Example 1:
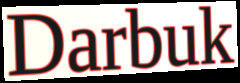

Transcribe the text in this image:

Darbuk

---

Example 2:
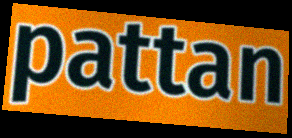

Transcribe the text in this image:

pattan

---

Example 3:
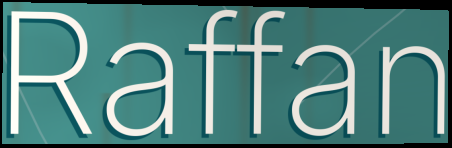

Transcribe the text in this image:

Raffan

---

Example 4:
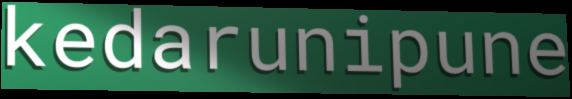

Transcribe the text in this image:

kedarunipune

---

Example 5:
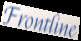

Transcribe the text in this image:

Frontline